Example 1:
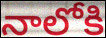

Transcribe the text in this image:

నాలోకి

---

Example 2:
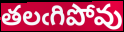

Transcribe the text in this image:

తలఁగిపోవు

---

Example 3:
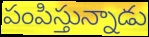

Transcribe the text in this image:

పంపిస్తున్నాడు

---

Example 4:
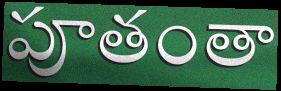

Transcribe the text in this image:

పూతంతా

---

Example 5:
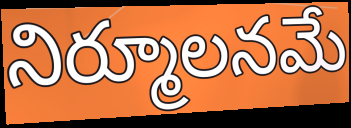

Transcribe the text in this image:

నిర్మూలనమే